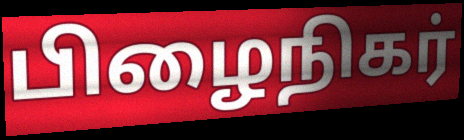
பிழைநிகர்